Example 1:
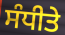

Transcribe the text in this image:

ਸੰਧੀਤੇ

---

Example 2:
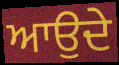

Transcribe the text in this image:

ਆਉਦੇ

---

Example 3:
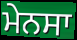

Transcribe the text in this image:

ਮੇਨਸਾ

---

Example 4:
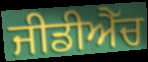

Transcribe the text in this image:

ਜੀਡੀਐੱਚ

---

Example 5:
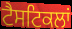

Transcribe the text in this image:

ਟੈਸਟਿਕਲਾਂ